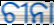
ଚୀନା